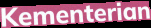
Kementerian